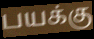
பயக்கு